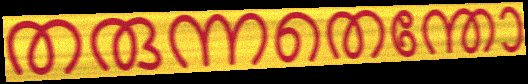
തരുന്നതെന്തോ